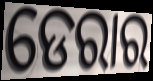
ଡେରାର